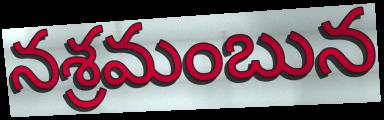
నశ్రమంబున